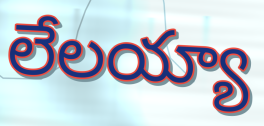
లేలయ్యా